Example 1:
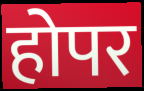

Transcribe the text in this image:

होपर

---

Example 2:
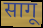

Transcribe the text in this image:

सागू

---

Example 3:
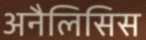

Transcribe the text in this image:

अनैलिसिस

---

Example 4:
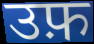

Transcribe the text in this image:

उफ़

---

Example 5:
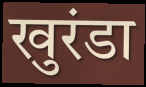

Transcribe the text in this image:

खुरंडा